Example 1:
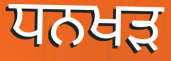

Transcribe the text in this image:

ਧਨਖਡ਼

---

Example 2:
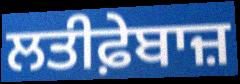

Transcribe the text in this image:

ਲਤੀਫ਼ੇਬਾਜ਼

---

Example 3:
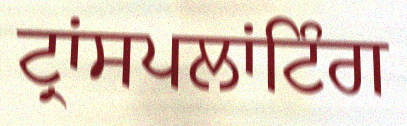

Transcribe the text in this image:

ਟ੍ਰਾਂਸਪਲਾਂਟਿੰਗ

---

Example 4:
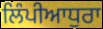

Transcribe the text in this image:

ਲਿੰਪੀਆਧੁਰਾ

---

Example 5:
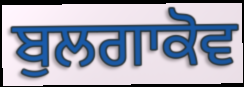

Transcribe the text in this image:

ਬੁਲਗਾਕੋਵ